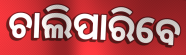
ଚାଲିପାରିବେ